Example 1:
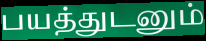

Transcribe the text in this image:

பயத்துடனும்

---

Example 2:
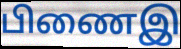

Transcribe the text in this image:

பிணைஇ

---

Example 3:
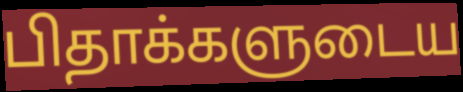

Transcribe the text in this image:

பிதாக்களுடைய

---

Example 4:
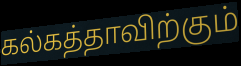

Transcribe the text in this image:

கல்கத்தாவிற்கும்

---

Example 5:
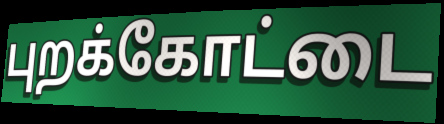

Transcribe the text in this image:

புறக்கோட்டை